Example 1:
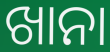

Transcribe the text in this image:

ଖାନା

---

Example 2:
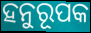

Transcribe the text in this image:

ହନୁରୂପକ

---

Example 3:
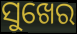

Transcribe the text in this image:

ସୁଖେର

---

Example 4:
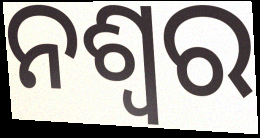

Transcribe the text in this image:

ନଶ୍ଵର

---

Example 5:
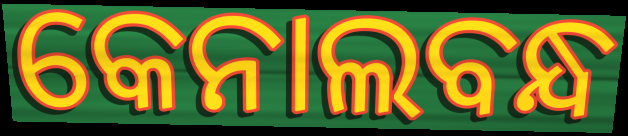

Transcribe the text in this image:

କେନାଲବନ୍ଧ